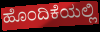
ಹೊಂದಿಕೆಯಲ್ಲಿ